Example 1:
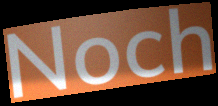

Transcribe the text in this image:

Noch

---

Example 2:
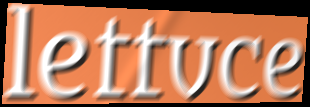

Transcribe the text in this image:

lettuce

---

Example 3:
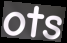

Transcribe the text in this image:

ots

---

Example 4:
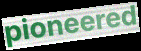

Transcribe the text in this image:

pioneered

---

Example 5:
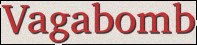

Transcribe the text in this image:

Vagabomb